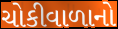
ચોકીવાળાનો